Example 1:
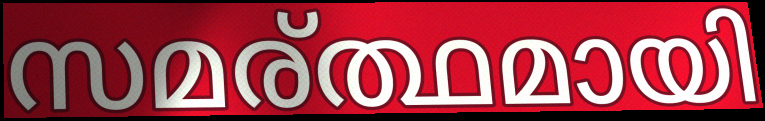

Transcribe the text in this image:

സമര്ത്ഥമായി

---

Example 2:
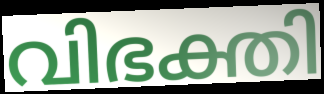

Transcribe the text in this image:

വിഭക്തി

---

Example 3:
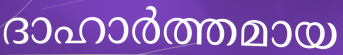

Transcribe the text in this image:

ദാഹാർത്തമായ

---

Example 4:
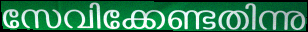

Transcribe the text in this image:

സേവിക്കേണ്ടതിന്നു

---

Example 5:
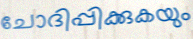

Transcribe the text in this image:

ചോദിപ്പിക്കുകയും